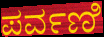
ಪರ್ವಣಿ